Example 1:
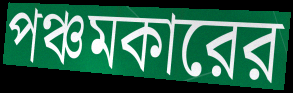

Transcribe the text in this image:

পঞ্চমকারের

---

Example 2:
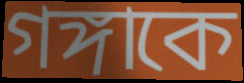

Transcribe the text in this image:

গঙ্গাকে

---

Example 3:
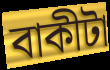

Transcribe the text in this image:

বাকীটা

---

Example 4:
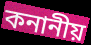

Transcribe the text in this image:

কনানীয়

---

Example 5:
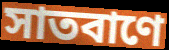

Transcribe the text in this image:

সাতবাণে